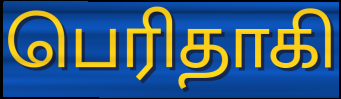
பெரிதாகி